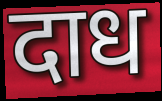
दाध